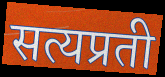
सत्यप्रती